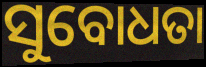
ସୁବୋଧତା